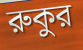
রুকুর